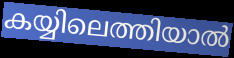
കയ്യിലെത്തിയാൽ